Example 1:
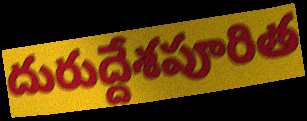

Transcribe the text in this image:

దురుద్దేశపూరిత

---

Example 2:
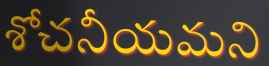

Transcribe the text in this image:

శోచనీయమని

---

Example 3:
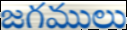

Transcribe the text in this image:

జగములు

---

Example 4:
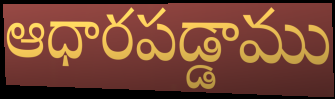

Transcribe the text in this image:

ఆధారపడ్డాము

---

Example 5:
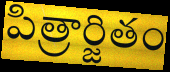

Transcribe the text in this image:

పిత్రార్జితం